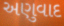
અણુવાદ